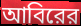
আবিরের